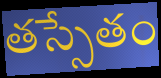
తస్సేతం